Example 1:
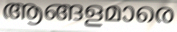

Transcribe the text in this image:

ആങ്ങളമാരെ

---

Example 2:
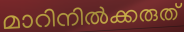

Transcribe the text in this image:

മാറിനിൽക്കരുത്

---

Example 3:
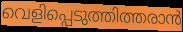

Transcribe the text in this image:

വെളിപ്പെടുത്തിത്തരാൻ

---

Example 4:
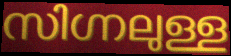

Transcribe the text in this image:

സിഗ്നലുള്ള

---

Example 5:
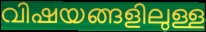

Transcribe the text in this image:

വിഷയങ്ങളിലുള്ള